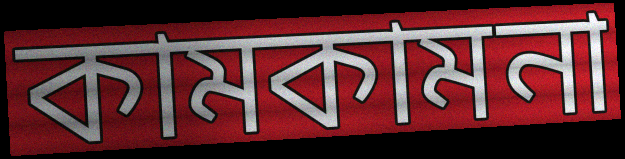
কামকামনা